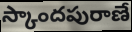
స్కాందపురాణే